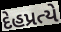
દેહપ્રત્યે